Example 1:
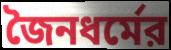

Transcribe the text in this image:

জৈনধর্মের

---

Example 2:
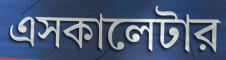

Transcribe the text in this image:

এসকালেটার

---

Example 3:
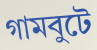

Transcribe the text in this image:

গামবুটে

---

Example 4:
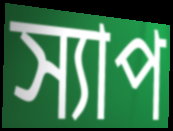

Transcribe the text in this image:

স্যাপ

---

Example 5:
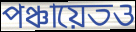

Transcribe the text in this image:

পঞ্চায়েতও